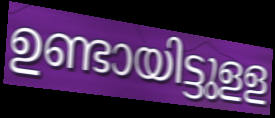
ഉണ്ടായിട്ടുളള